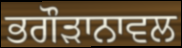
ਭਗੌੜਾਨਾਵਲ